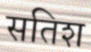
सतिश